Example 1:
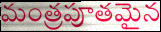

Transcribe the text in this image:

మంత్రపూతమైన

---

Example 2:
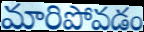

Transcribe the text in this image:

మారిపోవడం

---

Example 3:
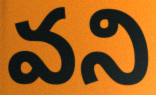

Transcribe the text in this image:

వని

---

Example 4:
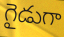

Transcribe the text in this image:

గైడుగా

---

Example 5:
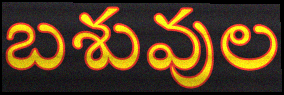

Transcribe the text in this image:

బశువుల